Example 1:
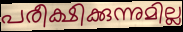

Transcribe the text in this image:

പരീക്ഷിക്കുന്നുമില്ല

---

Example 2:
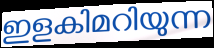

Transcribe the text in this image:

ഇളകിമറിയുന്ന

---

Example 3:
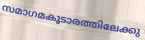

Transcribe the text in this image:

സമാഗമകൂടാരത്തിലേക്കു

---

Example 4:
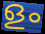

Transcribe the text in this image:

ളം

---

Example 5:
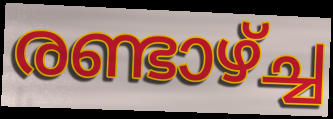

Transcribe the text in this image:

രണ്ടാഴ്ച്ച